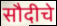
सौदीचे